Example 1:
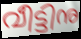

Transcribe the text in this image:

വീട്ടിനു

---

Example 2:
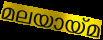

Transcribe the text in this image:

മലയായ്മ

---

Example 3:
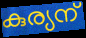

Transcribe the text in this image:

കുര്യന്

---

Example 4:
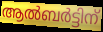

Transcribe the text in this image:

ആൽബർട്ടിന്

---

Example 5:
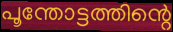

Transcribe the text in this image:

പൂന്തോട്ടത്തിന്റെ